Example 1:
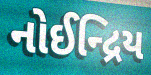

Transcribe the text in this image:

નોઈન્દ્રિય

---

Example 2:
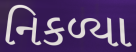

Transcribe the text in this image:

નિકળ્યા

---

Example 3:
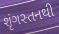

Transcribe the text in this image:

શૃંગસ્તનથી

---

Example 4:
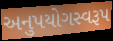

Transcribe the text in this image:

અનુપયોગસ્વરૂપ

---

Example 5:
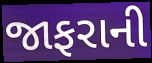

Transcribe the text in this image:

જાફરાની